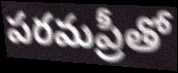
పరమప్రీతో